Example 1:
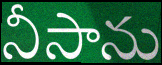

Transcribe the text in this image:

నీసాను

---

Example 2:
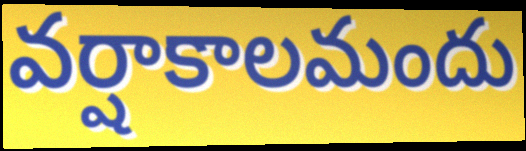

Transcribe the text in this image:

వర్షాకాలమందు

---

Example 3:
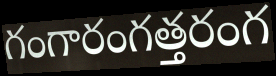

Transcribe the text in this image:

గంగారంగత్తరంగ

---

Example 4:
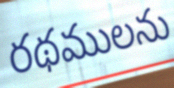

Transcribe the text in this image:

రథములను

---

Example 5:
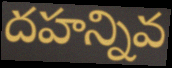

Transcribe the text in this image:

దహన్నివ